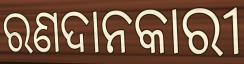
ରଣଦାନକାରୀ